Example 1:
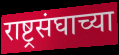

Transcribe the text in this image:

राष्ट्रसंघाच्या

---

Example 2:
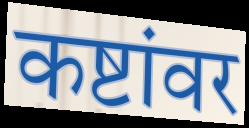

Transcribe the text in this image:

कष्टांवर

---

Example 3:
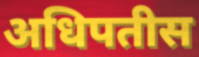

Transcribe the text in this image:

अधिपतीस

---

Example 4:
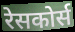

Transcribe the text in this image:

रेसकोर्स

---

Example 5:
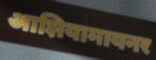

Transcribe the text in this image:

आशियामायनर